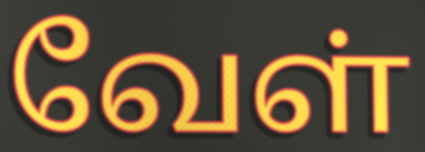
வேள்